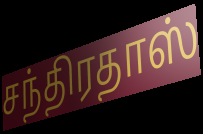
சந்திரதாஸ்